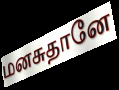
மனசுதானே